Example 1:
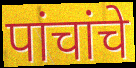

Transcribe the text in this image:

पांचांचे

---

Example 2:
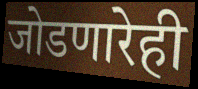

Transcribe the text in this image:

जोडणारेही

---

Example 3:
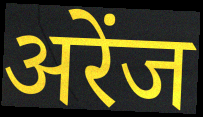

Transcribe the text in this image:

अरेंज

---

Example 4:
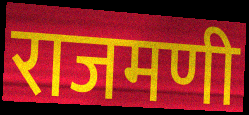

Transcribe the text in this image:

राजमणी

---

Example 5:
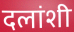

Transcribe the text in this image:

दलांशी